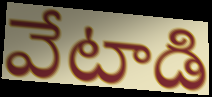
వేటాడి